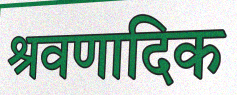
श्रवणादिक